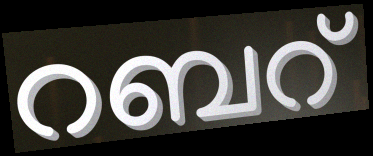
റബറ്